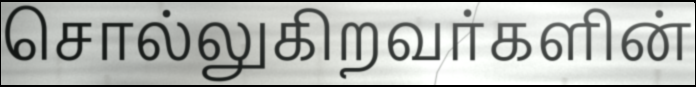
சொல்லுகிறவர்களின்